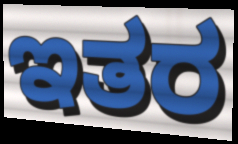
ಇತರ